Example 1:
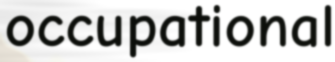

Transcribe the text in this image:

occupational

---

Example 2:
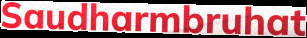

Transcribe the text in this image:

Saudharmbruhat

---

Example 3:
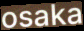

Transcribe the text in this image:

osaka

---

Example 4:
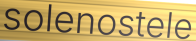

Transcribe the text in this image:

solenostele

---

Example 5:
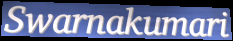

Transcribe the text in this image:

Swarnakumari